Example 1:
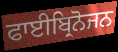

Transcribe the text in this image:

ਫਾਈਬ੍ਰਿਨੋਜਨ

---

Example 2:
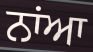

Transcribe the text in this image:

ਨਾਂਆ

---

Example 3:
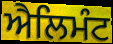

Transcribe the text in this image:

ਐਲਿਮੰਟ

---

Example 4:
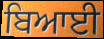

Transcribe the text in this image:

ਬਿਆਈ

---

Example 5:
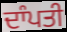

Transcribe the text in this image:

ਦਾੰਪਤੀ